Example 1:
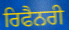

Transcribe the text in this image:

ਰਿਫੈਨਰੀ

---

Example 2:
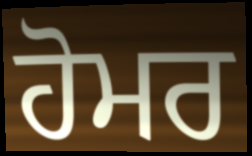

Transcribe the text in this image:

ਹੋਮਰ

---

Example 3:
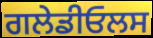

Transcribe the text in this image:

ਗਲੇਡੀਓਲਸ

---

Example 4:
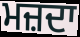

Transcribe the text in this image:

ਮਜ਼ਦਾ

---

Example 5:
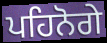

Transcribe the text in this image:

ਪਹਿਨੋਗੇ